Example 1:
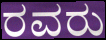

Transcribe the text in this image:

ರವರು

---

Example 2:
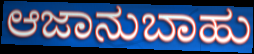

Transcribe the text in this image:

ಆಜಾನುಬಾಹು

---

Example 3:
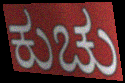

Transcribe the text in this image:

ಕುಚು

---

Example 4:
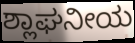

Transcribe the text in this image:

ಶ್ಲಾಘನೀಯ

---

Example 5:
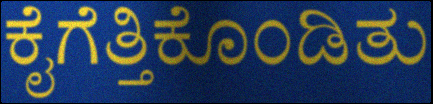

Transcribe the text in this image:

ಕೈಗೆತ್ತಿಕೊಂಡಿತು